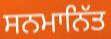
ਸਨਮਾਨਿੱਤ